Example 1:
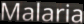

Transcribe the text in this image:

Malaria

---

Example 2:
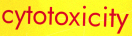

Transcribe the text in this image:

cytotoxicity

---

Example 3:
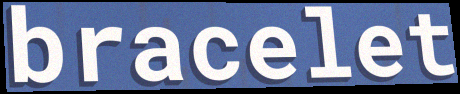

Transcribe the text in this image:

bracelet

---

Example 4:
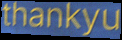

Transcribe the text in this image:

thankyu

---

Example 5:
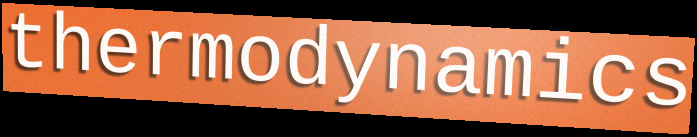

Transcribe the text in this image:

thermodynamics